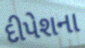
દીપેશના